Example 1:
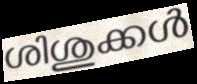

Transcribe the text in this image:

ശിശുക്കൾ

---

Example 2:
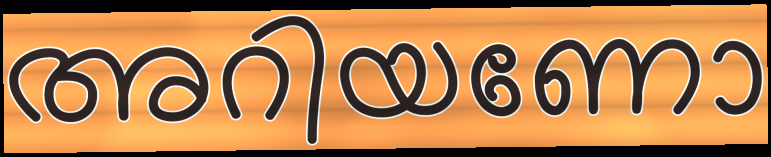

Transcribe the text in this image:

അറിയണോ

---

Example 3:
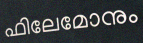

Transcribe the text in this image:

ഫിലേമോനും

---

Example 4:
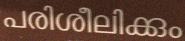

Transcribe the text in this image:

പരിശീലിക്കും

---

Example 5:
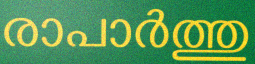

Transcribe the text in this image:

രാപാർത്തു